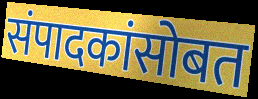
संपादकांसोबत